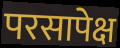
परसापेक्ष